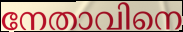
നേതാവിനെ